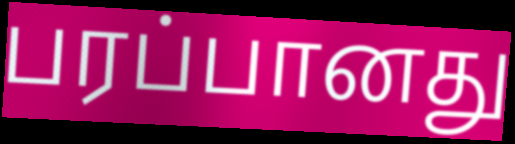
பரப்பானது